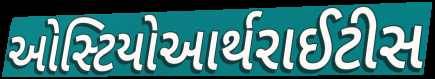
ઓસ્ટિયોઆર્થરાઈટીસ